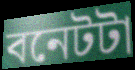
বনেটটা